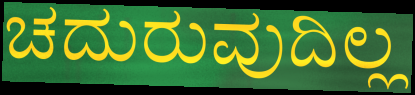
ಚದುರುವುದಿಲ್ಲ